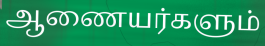
ஆணையர்களும்